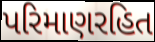
પરિમાણરહિત